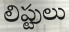
లిప్టులు